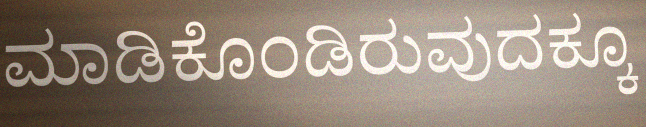
ಮಾಡಿಕೊಂಡಿರುವುದಕ್ಕೂ